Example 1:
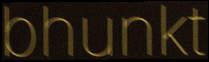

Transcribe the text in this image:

bhunkt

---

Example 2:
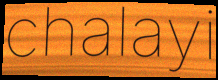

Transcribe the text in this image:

chalayi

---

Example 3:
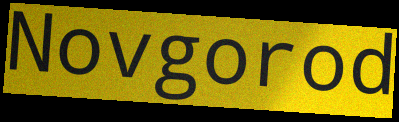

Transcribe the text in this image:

Novgorod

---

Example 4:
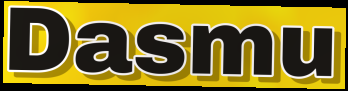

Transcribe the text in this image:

Dasmu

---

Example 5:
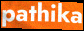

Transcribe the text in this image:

pathika